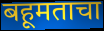
बहूमताचा